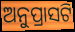
ଅନୁପ୍ରାସଟି